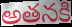
అతనకి